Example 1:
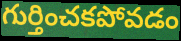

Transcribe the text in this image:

గుర్తించకపోవడం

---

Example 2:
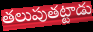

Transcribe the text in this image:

తలుపుతట్టాడు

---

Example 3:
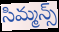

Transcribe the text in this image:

సిమ్మన్స్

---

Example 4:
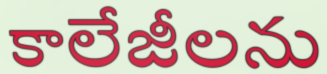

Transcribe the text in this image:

కాలేజీలను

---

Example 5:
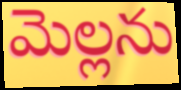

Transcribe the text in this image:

మెల్లను